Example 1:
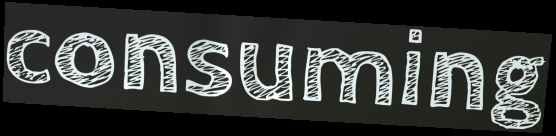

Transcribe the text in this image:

consuming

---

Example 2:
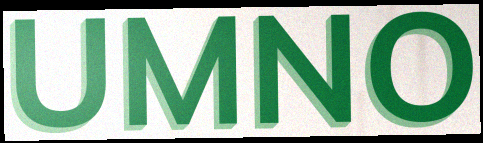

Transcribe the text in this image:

UMNO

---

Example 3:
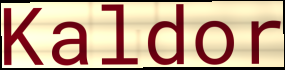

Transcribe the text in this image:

Kaldor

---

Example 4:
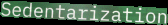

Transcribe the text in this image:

Sedentarization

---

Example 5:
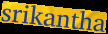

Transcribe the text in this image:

srikantha